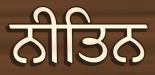
ਨੀਤਿਨ